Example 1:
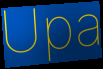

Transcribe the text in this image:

Upa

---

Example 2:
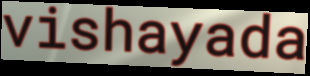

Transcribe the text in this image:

vishayada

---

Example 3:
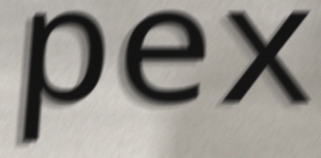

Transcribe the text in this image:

pex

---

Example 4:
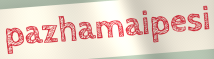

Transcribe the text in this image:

pazhamaipesi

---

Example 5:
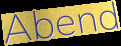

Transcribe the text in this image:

Abend